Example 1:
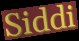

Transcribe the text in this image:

Siddi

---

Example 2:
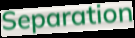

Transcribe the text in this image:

Separation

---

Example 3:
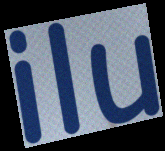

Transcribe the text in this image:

ilu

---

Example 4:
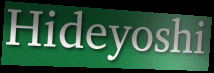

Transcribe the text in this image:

Hideyoshi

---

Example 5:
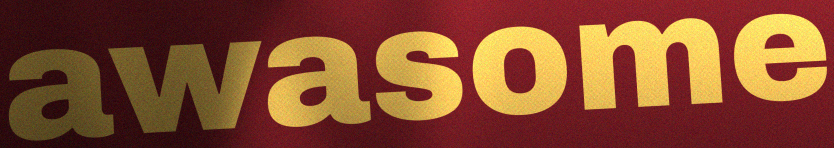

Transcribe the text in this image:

awasome